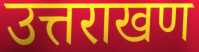
उत्तराखण